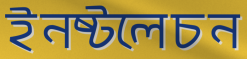
ইনষ্টলেচন